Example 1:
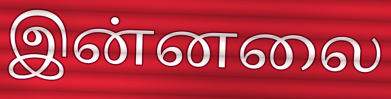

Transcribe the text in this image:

இன்னலை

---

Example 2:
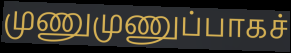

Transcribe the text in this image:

முணுமுணுப்பாகச்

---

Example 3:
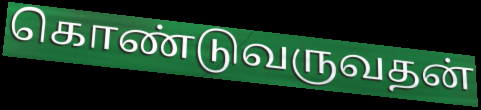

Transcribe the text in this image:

கொண்டுவருவதன்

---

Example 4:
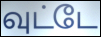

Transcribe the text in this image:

வுட்டே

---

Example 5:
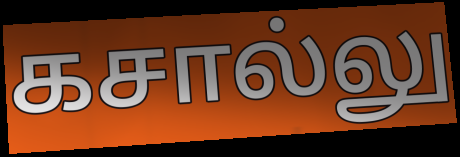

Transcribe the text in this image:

கசால்லு